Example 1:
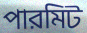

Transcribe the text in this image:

পারমিট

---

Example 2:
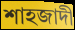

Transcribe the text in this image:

শাহজাদী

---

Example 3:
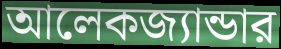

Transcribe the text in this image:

আলেকজ্যান্ডার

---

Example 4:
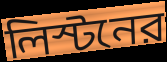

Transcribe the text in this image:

লিস্টনের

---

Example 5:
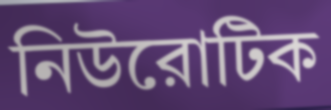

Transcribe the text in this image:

নিউরোটিক